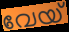
വേയ്